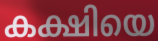
കക്ഷിയെ